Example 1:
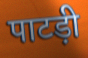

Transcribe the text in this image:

पाटड़ी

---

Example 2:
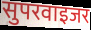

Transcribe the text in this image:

सुपरवाइजर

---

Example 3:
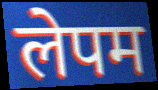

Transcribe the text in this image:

लेपम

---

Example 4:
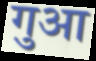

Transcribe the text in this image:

गुआ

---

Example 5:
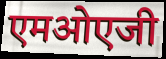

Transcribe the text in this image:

एमओएजी